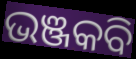
ଭଞ୍ଜକବି